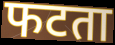
फटता